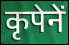
कृपेनें